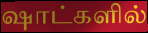
ஷாட்களில்